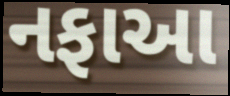
નફાઆ